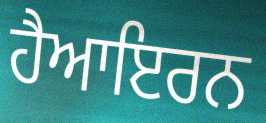
ਹੈਆਇਰਨ